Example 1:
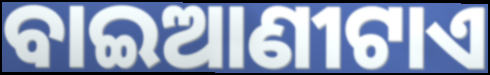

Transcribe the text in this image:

ବାଇଆଣୀଟାଏ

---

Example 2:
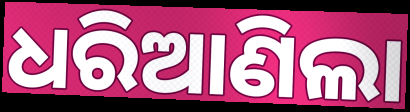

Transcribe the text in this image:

ଧରିଆଣିଲା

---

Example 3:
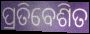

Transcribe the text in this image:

ପ୍ରତିବେଶିତ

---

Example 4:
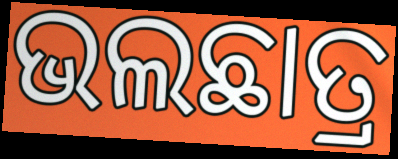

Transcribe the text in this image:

ଭଲଛାତ୍ର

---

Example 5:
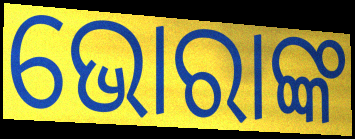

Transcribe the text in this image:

ଭୋରାଙ୍କ